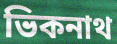
ভিকনাথ